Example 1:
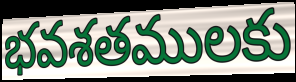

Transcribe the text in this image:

భవశతములకు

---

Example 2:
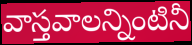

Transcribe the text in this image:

వాస్తవాలన్నింటినీ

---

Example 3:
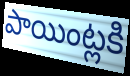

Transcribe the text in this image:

పాయింట్లకి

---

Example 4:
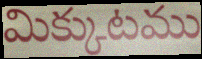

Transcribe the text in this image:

మిక్కుటము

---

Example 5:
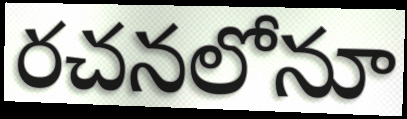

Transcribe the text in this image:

రచనలోనూ